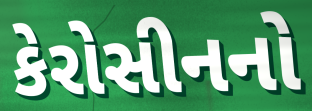
કેરોસીનનો